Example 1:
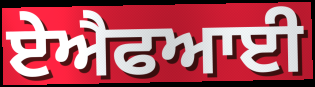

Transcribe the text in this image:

ਏਐਫਆਈ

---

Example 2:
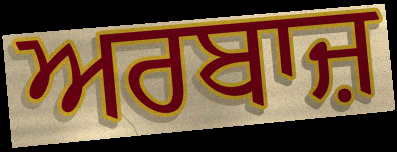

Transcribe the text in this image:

ਅਰਬਾਜ਼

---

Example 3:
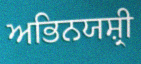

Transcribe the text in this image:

ਅਭਿਨਯਸ਼੍ਰੀ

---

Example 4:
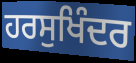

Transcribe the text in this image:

ਹਰਸੁਖਿੰਦਰ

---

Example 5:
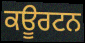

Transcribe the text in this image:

ਕਊਰਟਨ